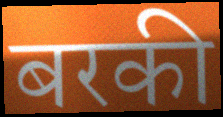
बरकी